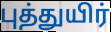
புத்துயிர்